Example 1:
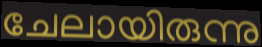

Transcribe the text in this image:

ചേലായിരുന്നു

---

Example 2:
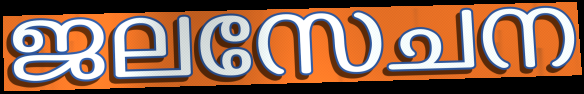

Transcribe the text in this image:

ജലസേചന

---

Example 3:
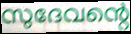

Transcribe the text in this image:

സുദേവന്റെ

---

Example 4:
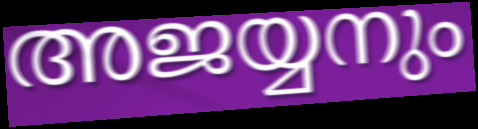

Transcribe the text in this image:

അജയ്യനും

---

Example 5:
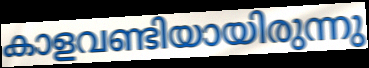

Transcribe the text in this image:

കാളവണ്ടിയായിരുന്നു